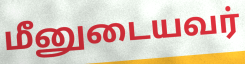
மீனுடையவர்